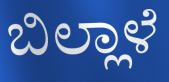
ಬಿಲ್ಲಾಳೆ